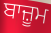
ਬਾਜ਼ੂਮ